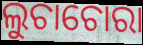
ଲୁଚାଚୋରା